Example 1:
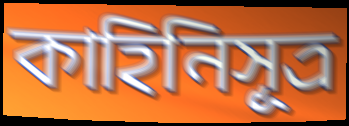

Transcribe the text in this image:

কাহিনিসূত্র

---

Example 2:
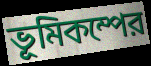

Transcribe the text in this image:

ভূমিকম্পের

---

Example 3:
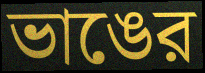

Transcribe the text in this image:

ভাঙের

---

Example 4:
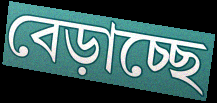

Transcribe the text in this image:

বেড়াচ্ছে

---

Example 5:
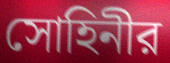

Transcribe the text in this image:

সোহিনীর